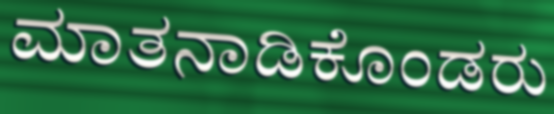
ಮಾತನಾಡಿಕೊಂಡರು